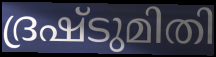
ദ്രഷ്ടുമിതി